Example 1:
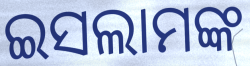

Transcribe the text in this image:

ଇସଲାମଙ୍କ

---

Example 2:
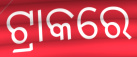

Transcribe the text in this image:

ଟ୍ରାକରେ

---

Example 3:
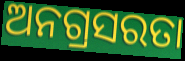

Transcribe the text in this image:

ଅନଗ୍ରସରତା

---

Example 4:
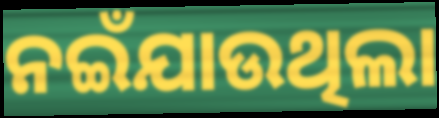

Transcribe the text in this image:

ନଇଁଯାଉଥିଲା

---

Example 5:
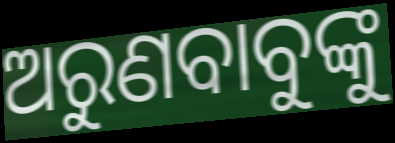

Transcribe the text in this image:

ଅରୁଣବାବୁଙ୍କୁ